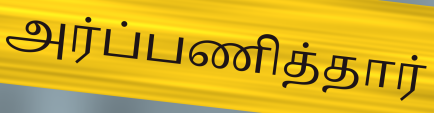
அர்ப்பணித்தார்